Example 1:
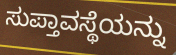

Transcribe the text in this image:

ಸುಪ್ತಾವಸ್ಥೆಯನ್ನು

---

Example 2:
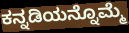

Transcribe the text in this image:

ಕನ್ನಡಿಯನ್ನೊಮ್ಮೆ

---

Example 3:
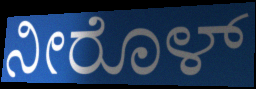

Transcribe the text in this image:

ನೀರೊಳ್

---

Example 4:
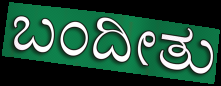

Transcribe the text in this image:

ಬಂದೀತು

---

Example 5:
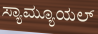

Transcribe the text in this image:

ಸ್ಯಾಮ್ಯೂಯಲ್